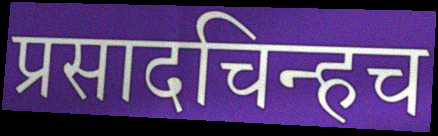
प्रसादचिन्हच